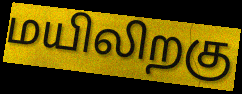
மயிலிறகு